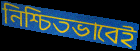
নিশ্চিতভাবেই